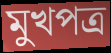
মুখপত্ৰ